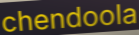
chendoola